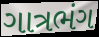
ગાત્રભંગ